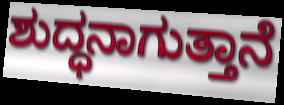
ಶುದ್ಧನಾಗುತ್ತಾನೆ